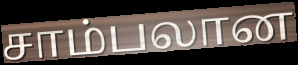
சாம்பலான